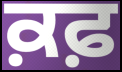
ਕ਼ਫ਼